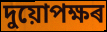
দুয়োপক্ষৰ